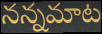
నన్నమాట